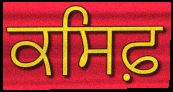
ਕਸਿਫ਼